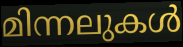
മിന്നലുകൾ